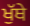
ਖੁੱਥੇ